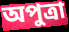
অপুত্রা